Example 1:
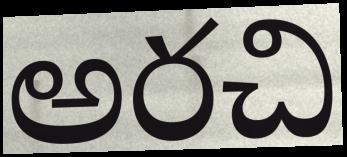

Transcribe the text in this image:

అరచి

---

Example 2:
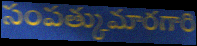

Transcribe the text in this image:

సంపత్కుమారగారి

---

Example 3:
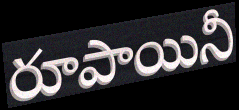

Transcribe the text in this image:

రూపాయినీ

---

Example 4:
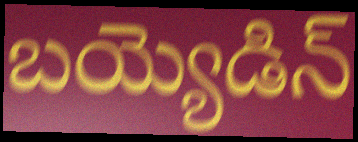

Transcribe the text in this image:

బయ్యెడిన్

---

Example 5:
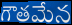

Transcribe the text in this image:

గౌతమేన